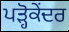
ਪੜ੍ਹੋਕੇਂਦਰ